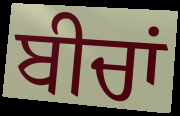
ਬੀਚਾਂ